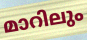
മാറിലും